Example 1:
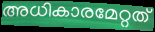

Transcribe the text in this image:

അധികാരമേറ്റത്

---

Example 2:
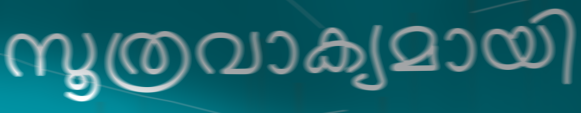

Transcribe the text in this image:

സൂത്രവാക്യമായി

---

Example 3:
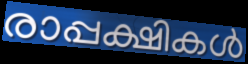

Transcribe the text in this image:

രാപ്പക്ഷികൾ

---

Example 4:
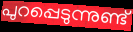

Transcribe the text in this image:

പുറപ്പെടുന്നുണ്ട്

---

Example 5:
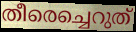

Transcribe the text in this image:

തീരെച്ചെറുത്